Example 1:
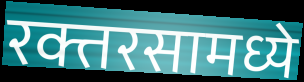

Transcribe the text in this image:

रक्तरसामध्ये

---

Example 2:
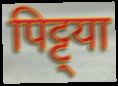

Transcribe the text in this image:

पिट्ट्या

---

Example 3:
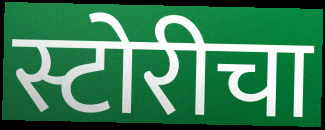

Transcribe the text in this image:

स्टोरीचा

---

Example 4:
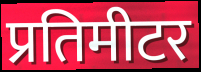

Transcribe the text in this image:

प्रतिमीटर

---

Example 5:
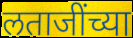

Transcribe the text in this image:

लताजींच्या